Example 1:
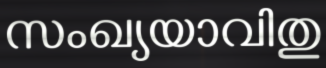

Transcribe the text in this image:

സംഖ്യയാവിതു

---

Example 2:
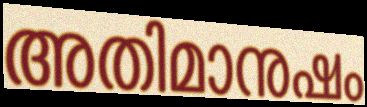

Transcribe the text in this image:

അതിമാനുഷം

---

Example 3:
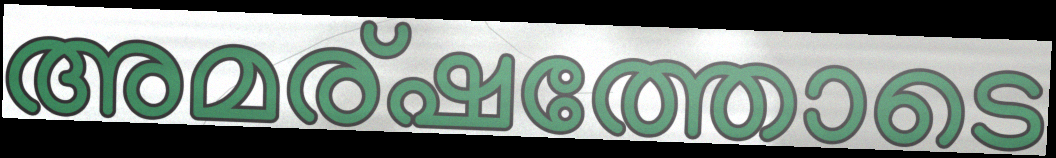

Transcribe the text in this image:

അമര്ഷത്തോടെ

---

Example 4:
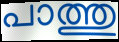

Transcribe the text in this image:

പാത്തു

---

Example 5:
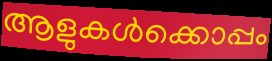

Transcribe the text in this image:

ആളുകൾക്കൊപ്പം